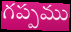
గప్పము